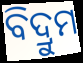
ବିଦ୍ରୁମ